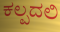
ಕಲ್ಪದಲಿ